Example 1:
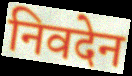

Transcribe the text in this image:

निवदेन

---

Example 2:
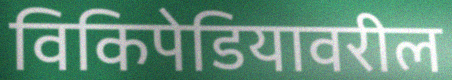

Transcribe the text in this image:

विकिपेडियावरील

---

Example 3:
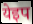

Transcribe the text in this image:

येइप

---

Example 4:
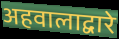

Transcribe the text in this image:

अहवालाद्वारे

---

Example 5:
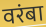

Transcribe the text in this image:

वरंबा